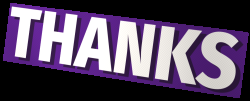
THANKS